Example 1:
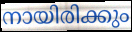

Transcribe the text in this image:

നായിരിക്കും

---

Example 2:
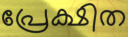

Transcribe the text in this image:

പ്രേക്ഷിത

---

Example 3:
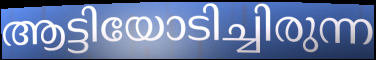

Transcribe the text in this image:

ആട്ടിയോടിച്ചിരുന്ന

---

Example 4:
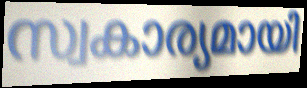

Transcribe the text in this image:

സ്വകാര്യമായി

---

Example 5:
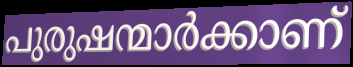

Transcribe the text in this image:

പുരുഷന്മാർക്കാണ്